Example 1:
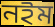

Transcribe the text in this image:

নইম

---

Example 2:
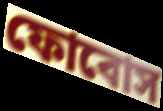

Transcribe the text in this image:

ফোবোস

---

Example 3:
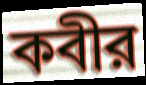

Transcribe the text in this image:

কবীর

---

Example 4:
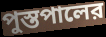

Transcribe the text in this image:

পুস্তপালের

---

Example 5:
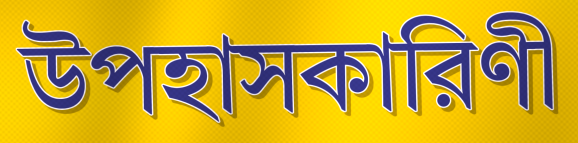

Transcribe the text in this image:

উপহাসকারিণী